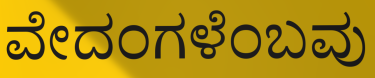
ವೇದಂಗಳೆಂಬವು